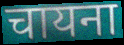
चायना